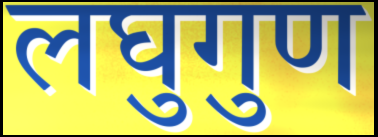
लघुगुण